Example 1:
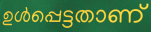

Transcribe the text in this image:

ഉൾപ്പെട്ടതാണ്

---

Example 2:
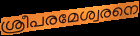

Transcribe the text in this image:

ശ്രീപരമേശ്വരനെ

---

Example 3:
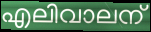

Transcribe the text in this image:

എലിവാലന്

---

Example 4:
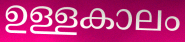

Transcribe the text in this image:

ഉള്ളകാലം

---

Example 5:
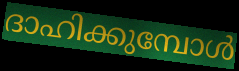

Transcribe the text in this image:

ദാഹിക്കുമ്പോൾ